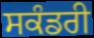
ਸਕੰਡਰੀ